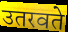
उतरवते